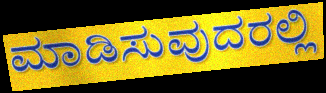
ಮಾಡಿಸುವುದರಲ್ಲಿ